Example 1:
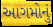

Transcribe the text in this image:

આગમોનું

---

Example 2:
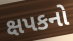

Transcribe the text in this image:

ક્ષપકનો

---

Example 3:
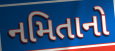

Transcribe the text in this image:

નમિતાનો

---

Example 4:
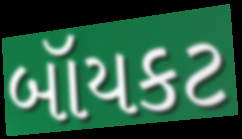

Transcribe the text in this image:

બૉયકટ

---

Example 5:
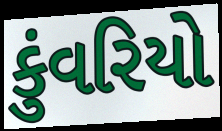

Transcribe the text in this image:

કુંવરિયો